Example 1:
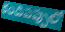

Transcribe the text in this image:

కందిపప్పులో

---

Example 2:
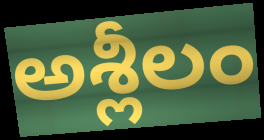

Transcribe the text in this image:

అశ్లీలం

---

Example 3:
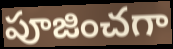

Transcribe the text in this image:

పూజించగా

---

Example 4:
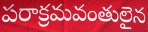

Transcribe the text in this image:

పరాక్రమవంతులైన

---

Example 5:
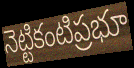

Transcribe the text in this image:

నెట్టికంటిప్రభూ